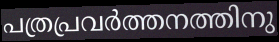
പത്രപ്രവർത്തനത്തിനു